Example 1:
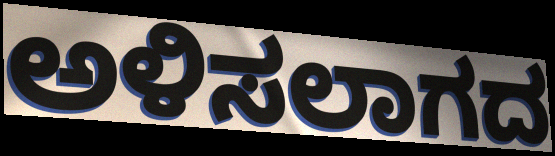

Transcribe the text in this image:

ಅಳಿಸಲಾಗದ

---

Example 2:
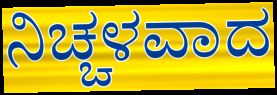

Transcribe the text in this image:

ನಿಚ್ಚಳವಾದ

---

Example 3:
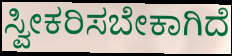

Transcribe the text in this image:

ಸ್ವೀಕರಿಸಬೇಕಾಗಿದೆ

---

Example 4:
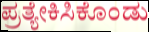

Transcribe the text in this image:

ಪ್ರತ್ಯೇಕಿಸಿಕೊಂಡು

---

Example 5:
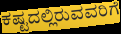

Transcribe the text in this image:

ಕಷ್ಟದಲ್ಲಿರುವವರಿಗೆ